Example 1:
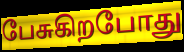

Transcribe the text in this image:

பேசுகிறபோது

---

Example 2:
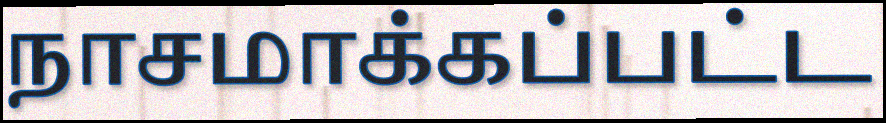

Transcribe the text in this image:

நாசமாக்கப்பட்ட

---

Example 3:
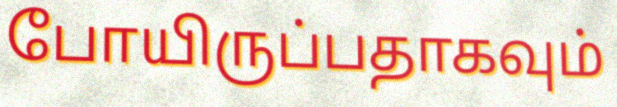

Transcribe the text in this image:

போயிருப்பதாகவும்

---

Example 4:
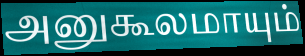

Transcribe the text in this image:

அனுகூலமாயும்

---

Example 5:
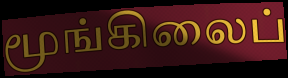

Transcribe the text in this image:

மூங்கிலைப்